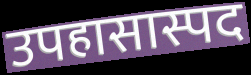
उपहासास्पद